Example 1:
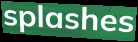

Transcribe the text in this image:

splashes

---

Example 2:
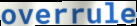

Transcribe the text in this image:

overrule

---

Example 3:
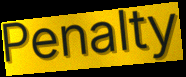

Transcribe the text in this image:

Penalty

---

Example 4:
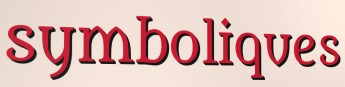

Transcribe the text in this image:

symboliques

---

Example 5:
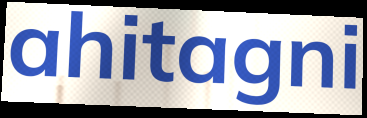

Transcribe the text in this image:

ahitagni